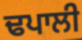
ਢਪਾਲੀ